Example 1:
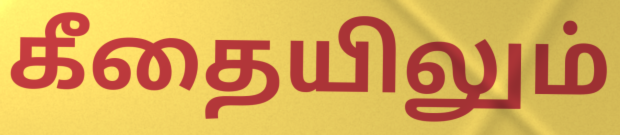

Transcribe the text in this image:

கீதையிலும்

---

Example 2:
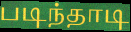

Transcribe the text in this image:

படிந்தாடி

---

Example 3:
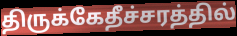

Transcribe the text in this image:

திருக்கேதீச்சரத்தில்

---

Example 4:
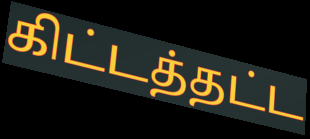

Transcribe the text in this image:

கிட்டத்தட்ட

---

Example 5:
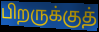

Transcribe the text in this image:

பிறருக்குத்